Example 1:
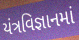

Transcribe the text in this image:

યંત્રવિજ્ઞાનમાં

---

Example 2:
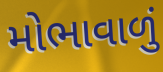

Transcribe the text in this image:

મોભાવાળું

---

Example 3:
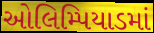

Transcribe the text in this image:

ઓલિમ્પિયાડમાં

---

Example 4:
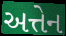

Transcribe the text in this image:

અત્તેન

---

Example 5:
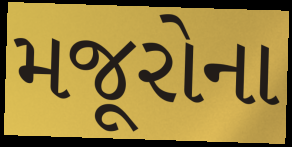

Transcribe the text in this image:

મજૂરોના